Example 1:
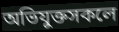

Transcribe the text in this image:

অভিযুক্তসকলে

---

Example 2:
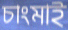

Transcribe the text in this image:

চাংমাই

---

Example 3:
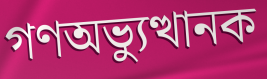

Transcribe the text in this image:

গণঅভ্যুত্থানক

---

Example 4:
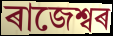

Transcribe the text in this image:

ৰাজেশ্বৰ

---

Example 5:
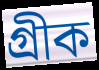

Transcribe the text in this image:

গ্ৰীক